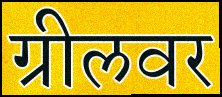
ग्रीलवर